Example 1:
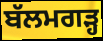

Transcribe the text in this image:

ਬੱਲਮਗੜ੍ਹ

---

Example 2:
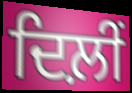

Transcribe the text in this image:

ਦਿਲ਼ੀਂ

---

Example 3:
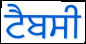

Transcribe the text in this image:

ਟੈਬਸੀ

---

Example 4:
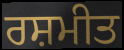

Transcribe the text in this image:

ਰਸ਼ਮੀਤ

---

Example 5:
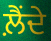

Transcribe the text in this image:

ਲ਼ੈਂਦੇ